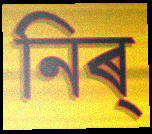
নিৰ্